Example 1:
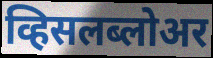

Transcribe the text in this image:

व्हिसलब्लोअर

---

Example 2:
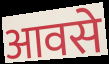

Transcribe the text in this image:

आवसे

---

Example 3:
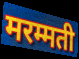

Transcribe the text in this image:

मरम्मती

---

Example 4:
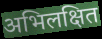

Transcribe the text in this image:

अभिलक्षित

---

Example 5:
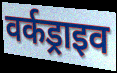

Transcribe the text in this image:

वर्कड्राइव